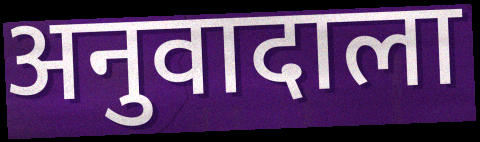
अनुवादाला